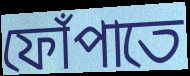
ফোঁপাতে